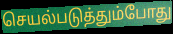
செயல்படுத்தும்போது